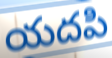
యదపి